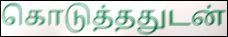
கொடுத்ததுடன்